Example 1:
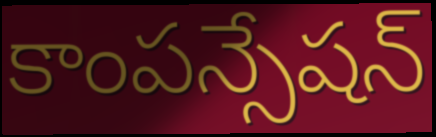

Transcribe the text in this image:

కాంపన్సేషన్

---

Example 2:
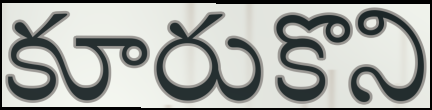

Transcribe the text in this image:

కూరుకొని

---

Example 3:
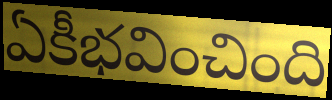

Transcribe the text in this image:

ఏకీభవించింది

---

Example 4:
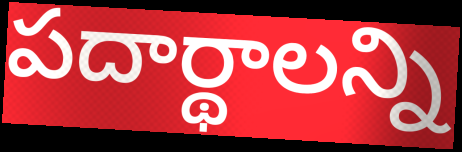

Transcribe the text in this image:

పదార్థాలన్ని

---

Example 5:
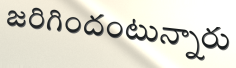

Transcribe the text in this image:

జరిగిందంటున్నారు